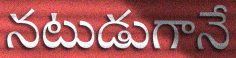
నటుడుగానే